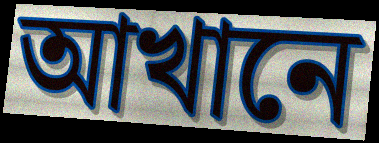
আখানে